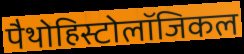
पैथोहिस्टोलॉजिकल